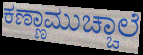
ಕಣ್ಣಾಮುಚ್ಚಾಲೆ